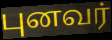
புனவர்